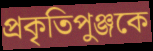
প্রকৃতিপুঞ্জকে